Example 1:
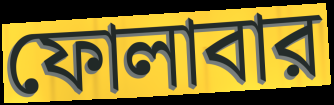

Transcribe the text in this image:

ফোলাবার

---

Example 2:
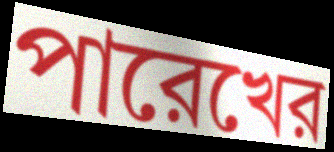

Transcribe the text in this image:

পারেখের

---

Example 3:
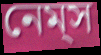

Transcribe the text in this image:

নেম্‌স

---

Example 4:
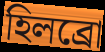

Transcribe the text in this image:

হিলব্রো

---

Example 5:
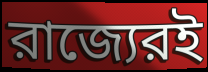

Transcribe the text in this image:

রাজ্যেরই